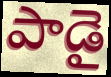
పాడై